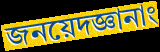
জনয়েদজ্ঞানাং